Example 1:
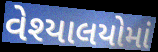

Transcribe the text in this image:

વેશ્યાલયોમાં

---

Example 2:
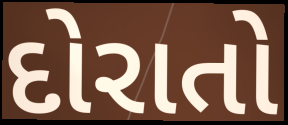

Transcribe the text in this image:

દોરાતો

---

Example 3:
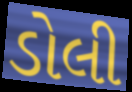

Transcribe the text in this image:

ડોલી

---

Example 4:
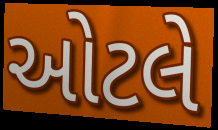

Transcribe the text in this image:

ઓટલે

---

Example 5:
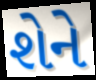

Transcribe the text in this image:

શેને